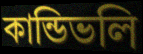
কান্ডিভলি